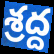
శ్రద్ద